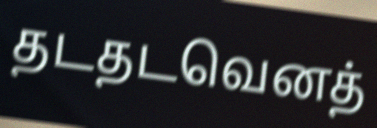
தடதடவெனத்